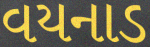
વયનાડ